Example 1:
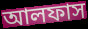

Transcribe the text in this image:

আলফাস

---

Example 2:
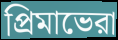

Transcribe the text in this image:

প্রিমাভেরা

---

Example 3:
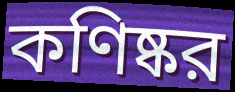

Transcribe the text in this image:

কণিষ্কর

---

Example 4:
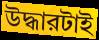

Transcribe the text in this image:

উদ্ধারটাই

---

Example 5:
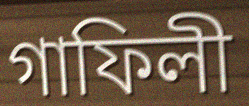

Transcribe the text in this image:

গাফিলী